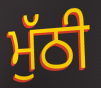
ਮੁੱਠੀ